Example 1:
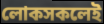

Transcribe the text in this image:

লোকসকলেই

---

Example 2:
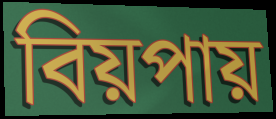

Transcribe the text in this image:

বিয়পায়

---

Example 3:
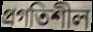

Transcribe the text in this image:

প্ৰগতিশীল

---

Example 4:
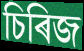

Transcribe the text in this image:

চিৰিজ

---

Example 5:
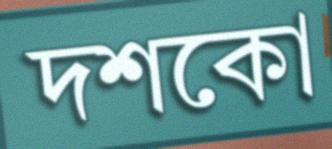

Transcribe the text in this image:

দশকো